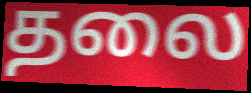
தலை